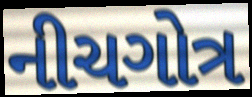
નીચગોત્ર